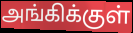
அங்கிக்குள்